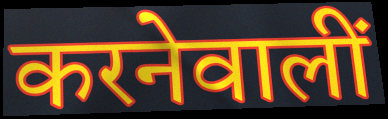
करनेवालीं